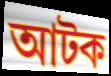
আটক